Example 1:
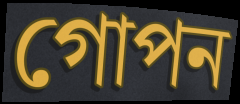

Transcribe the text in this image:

গোপন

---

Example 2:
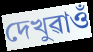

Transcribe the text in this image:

দেখুৱাওঁ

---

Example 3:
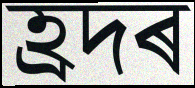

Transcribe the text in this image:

হ্ৰদৰ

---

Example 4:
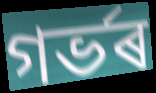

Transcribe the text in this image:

গৰ্ভৰ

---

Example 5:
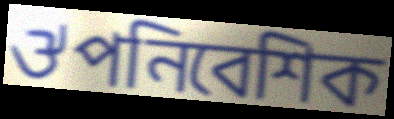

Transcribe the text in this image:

ঔপনিবেশিক